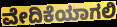
ವೇದಿಕೆಯಾಗಲಿ